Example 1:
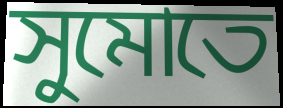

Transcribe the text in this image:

সুমোতে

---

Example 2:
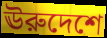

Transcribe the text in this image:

ঊরুদেশে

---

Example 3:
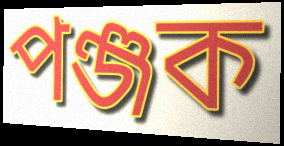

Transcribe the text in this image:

পঞ্জক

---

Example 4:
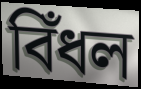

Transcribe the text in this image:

বিঁধল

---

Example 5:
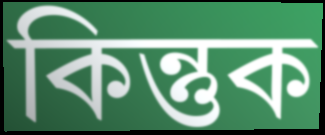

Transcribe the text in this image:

কিন্তুক